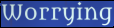
Worrying